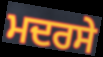
ਮਦਰਸੇ